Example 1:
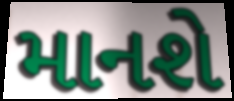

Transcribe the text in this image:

માનશે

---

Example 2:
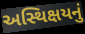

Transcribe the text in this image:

અસ્થિક્ષયનું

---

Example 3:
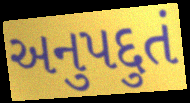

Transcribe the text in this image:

અનુપદ્દુતં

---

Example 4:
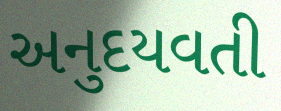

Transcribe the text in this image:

અનુદયવતી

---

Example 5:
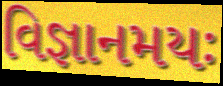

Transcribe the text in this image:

વિજ્ઞાનમયઃ